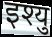
इश्यु